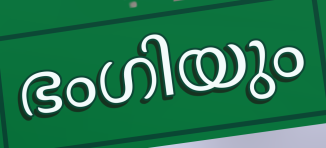
ഭംഗിയും